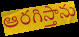
ఆరగిస్తాను